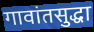
गावांतसुद्धा